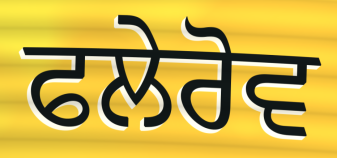
ਫਲੇਰੋਵ